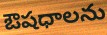
ఔషధాలను